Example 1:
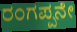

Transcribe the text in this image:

ರಂಗಪ್ಪನೇ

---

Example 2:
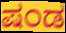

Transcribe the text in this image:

ಷಂಡ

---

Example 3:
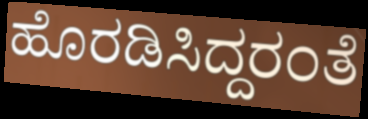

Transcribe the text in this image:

ಹೊರಡಿಸಿದ್ದರಂತೆ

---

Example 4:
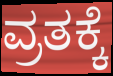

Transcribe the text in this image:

ವ್ರತಕ್ಕೆ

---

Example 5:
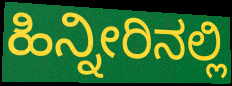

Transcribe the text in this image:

ಹಿನ್ನೀರಿನಲ್ಲಿ